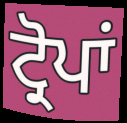
ਟ੍ਰੋਪਾਂ